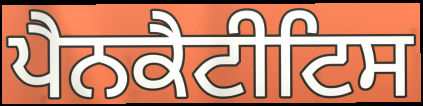
ਪੈਨਕੈਟੀਟਿਸ